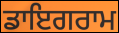
ਡਾਇਗਰਾਮ